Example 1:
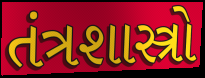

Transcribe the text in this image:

તંત્રશાસ્ત્રો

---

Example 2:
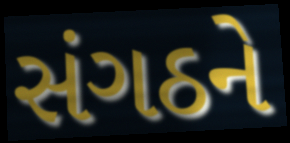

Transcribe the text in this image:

સંગઠને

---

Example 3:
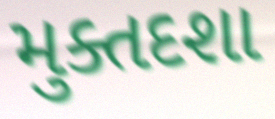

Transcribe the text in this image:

મુક્તદશા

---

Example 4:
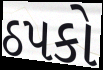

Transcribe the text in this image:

ઠપકો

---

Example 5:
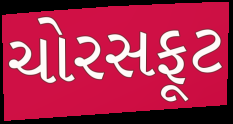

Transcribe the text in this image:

ચોરસફૂટ